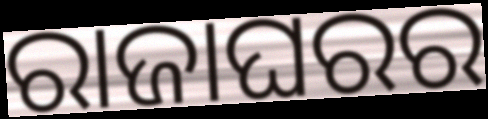
ରାଜାଘରର